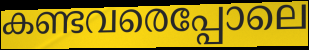
കണ്ടവരെപ്പോലെ